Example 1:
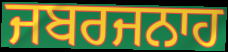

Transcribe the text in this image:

ਜਬਰਜਨਾਹ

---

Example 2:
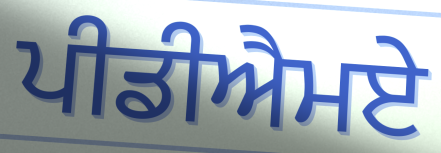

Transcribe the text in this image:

ਪੀਡੀਐਮਏ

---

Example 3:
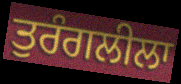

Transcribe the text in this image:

ਤੁਰੰਗਲੀਲਾ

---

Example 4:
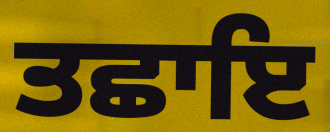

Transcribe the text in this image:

ਤਛਾਇ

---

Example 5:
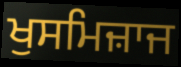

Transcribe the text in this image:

ਖੁਸਮਿਜ਼ਾਜ